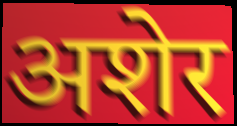
अशेर